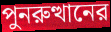
পুনরুত্থানের